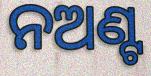
ନଅଣ୍ଟ